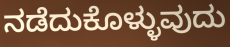
ನಡೆದುಕೊಳ್ಳುವುದು